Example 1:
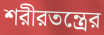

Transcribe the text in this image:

শরীরতন্ত্রের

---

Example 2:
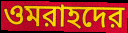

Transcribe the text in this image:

ওমরাহদের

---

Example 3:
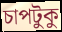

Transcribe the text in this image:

চাপটুকু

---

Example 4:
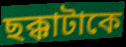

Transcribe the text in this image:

ছক্কাটাকে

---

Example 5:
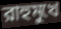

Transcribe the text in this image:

রাহুমুখে